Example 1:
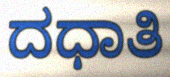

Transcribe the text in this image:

ದಧಾತಿ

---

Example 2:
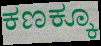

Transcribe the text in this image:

ಕಣಕ್ಕೂ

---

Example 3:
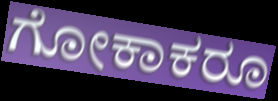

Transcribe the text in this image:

ಗೋಕಾಕರೂ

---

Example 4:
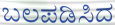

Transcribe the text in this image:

ಬಲಪಡಿಸಿದ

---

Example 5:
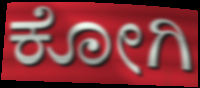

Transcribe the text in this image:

ಕೋಗಿ